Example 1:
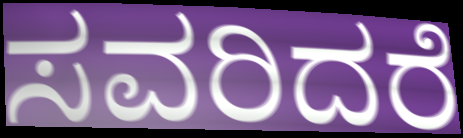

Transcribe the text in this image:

ಸವರಿದರೆ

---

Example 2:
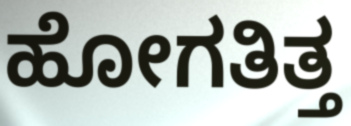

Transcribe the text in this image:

ಹೋಗತಿತ್ತ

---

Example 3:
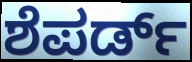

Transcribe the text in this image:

ಶೆಪರ್ಡ್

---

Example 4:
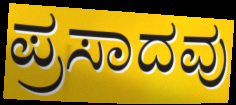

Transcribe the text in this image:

ಪ್ರಸಾದವು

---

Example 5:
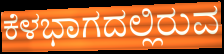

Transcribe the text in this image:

ಕೆಳಭಾಗದಲ್ಲಿರುವ